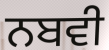
ਨਬਵੀ